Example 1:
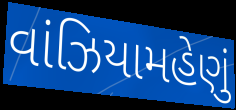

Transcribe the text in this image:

વાંઝિયામહેણું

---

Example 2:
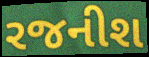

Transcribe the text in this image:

રજનીશ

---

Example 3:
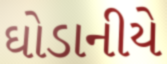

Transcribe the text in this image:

ઘોડાનીયે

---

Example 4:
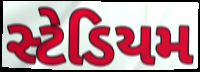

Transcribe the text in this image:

સ્ટેડિયમ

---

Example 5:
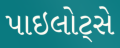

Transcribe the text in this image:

પાઇલોટ્સે